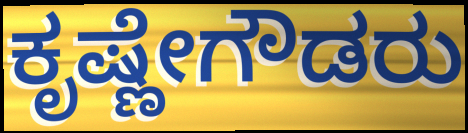
ಕೃಷ್ಣೇಗೌಡರು